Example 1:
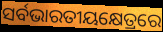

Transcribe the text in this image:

ସର୍ବଭାରତୀୟକ୍ଷେତ୍ରରେ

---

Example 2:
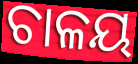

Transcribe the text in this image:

ଚାଳୟ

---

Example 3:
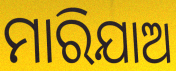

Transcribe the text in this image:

ମାରିଯାଅ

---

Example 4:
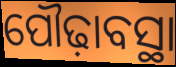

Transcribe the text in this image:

ପୌଢ଼ାବସ୍ଥା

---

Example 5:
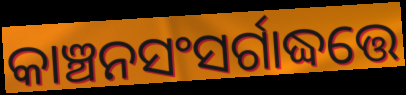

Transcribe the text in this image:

କାଞ୍ଚନସଂସର୍ଗାଦ୍ଧତ୍ତେ